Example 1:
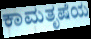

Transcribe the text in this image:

ಕಾಮತೃಷೆಯ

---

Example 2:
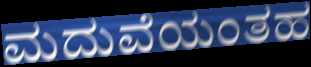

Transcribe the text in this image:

ಮದುವೆಯಂತಹ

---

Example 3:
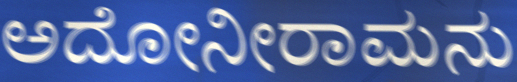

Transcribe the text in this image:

ಅದೋನೀರಾಮನು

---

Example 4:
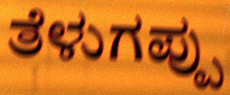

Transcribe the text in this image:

ತೆಳುಗಪ್ಪು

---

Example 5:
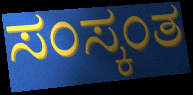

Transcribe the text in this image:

ಸಂಸ್ಕಂತ